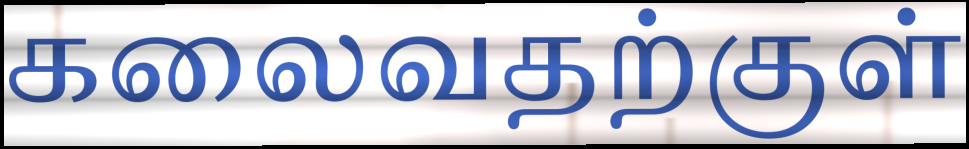
கலைவதற்குள்